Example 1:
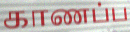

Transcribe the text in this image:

காணப்ப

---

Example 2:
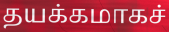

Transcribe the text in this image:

தயக்கமாகச்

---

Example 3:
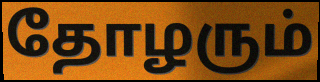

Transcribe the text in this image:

தோழரும்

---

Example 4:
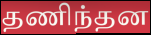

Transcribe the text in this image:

தணிந்தன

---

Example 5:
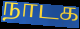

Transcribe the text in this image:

நாடக